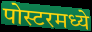
पोस्टरमध्ये